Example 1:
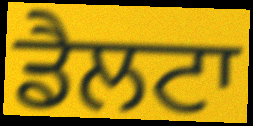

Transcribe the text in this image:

ਡੈਲਟਾ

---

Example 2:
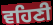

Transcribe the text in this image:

ਵਹਿਣੀ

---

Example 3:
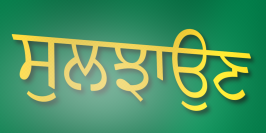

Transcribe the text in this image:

ਸੁਲਝਾਉਣ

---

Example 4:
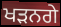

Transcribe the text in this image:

ਖੜਨਗੇ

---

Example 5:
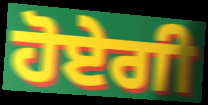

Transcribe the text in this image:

ਹੋਏਗੀ